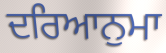
ਦਰਿਆਨੁਮਾ